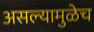
असल्यामुळेच